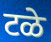
टळे